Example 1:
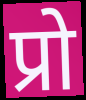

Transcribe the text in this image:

प्रो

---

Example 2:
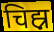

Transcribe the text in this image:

चिह्न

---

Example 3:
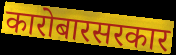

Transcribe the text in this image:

कारोबारसरकार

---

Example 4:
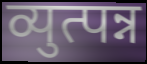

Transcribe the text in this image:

व्युत्पन्न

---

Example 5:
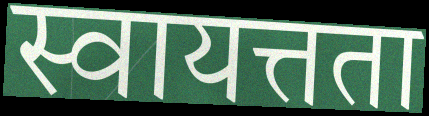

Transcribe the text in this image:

स्वायत्तता